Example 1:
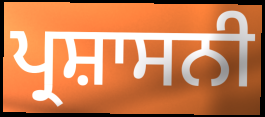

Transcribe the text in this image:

ਪ੍ਰਸ਼ਾਸਨੀ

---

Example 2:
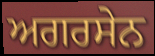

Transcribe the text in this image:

ਅਗਰਸੇਨ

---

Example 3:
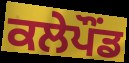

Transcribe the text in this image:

ਕਲੇਪੌਂਡ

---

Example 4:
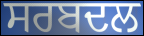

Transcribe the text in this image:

ਸਰਬਦਲ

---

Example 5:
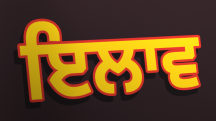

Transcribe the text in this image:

ਇਲਾਵ